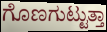
ಗೊಣಗುಟ್ಟುತ್ತಾ